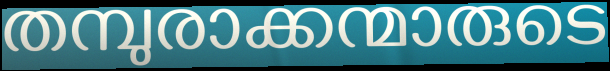
തമ്പുരാക്കന്മാരുടെ